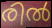
രിൽ